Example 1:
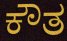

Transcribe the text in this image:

ಕೌತ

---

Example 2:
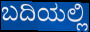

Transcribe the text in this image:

ಬದಿಯಲ್ಲಿ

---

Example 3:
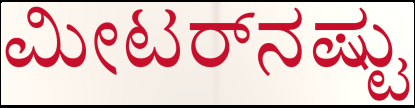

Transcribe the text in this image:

ಮೀಟರ್‌ನಷ್ಟು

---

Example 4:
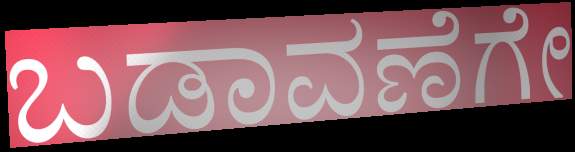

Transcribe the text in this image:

ಬಡಾವಣೆಗೇ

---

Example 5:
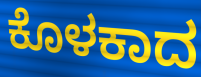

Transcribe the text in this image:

ಕೊಳಕಾದ